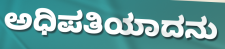
ಅಧಿಪತಿಯಾದನು